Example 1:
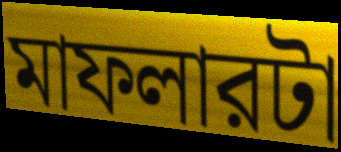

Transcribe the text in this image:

মাফলারটা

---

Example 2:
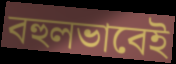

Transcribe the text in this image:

বহুলভাবেই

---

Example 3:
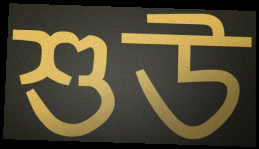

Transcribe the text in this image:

শুউ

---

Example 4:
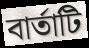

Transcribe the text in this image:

বার্তাটি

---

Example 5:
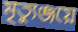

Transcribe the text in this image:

মৃত্যুঞ্জয়ে